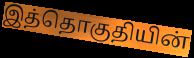
இத்தொகுதியின்